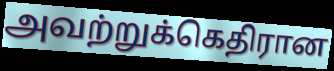
அவற்றுக்கெதிரான